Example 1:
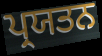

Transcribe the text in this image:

ਪ੍ਰਯਤਨ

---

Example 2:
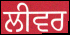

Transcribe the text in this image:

ਲੀਵਰ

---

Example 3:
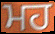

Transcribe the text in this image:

ਮਹ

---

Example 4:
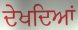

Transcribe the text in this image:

ਦੇਖਦਿਆਂ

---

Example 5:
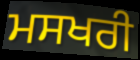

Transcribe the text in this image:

ਮਸਖਰੀ